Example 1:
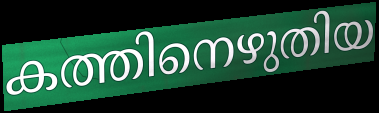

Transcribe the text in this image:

കത്തിനെഴുതിയ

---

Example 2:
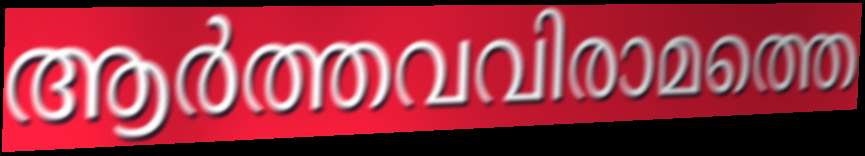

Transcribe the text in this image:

ആർത്തവവിരാമത്തെ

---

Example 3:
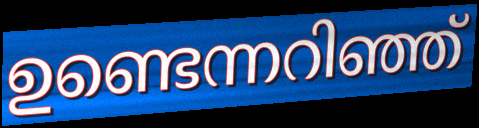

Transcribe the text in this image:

ഉണ്ടെന്നറിഞ്ഞ്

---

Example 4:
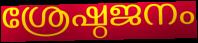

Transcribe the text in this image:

ശ്രേഷ്ഠജനം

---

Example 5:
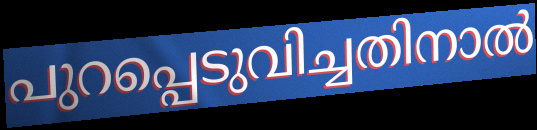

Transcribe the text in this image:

പുറപ്പെടുവിച്ചതിനാൽ